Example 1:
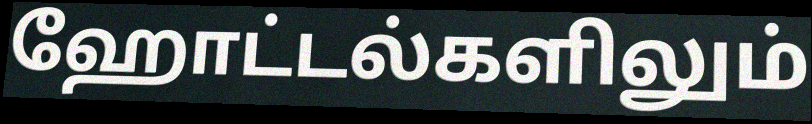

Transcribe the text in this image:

ஹோட்டல்களிலும்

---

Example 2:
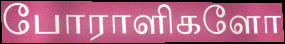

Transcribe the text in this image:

போராளிகளோ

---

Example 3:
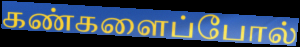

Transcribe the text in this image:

கண்களைப்போல்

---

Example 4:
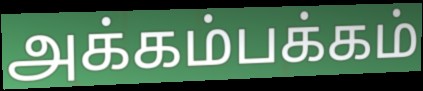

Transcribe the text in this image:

அக்கம்பக்கம்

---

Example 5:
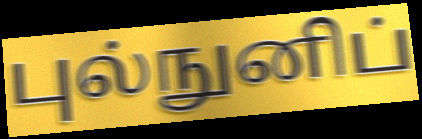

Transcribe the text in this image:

புல்நுனிப்